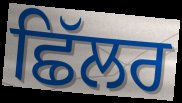
ਛਿੱਲਰ